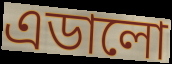
এডালো